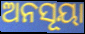
ଅନସୂୟା